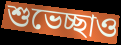
শুভেচ্ছাও